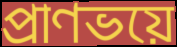
প্রাণভয়ে